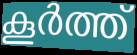
കൂർത്ത്